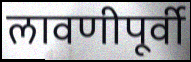
लावणीपूर्वी